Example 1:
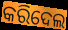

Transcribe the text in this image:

କରିଦେଲ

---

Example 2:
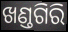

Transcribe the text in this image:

ଖଣ୍ଡଗିରି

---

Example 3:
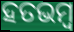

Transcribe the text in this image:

ହତଭମ୍ୱ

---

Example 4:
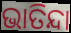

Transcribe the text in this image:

ଭାତିନ୍ଦା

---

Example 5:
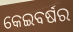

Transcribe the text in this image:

କେଇବର୍ଷର